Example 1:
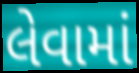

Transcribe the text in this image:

લેવામાં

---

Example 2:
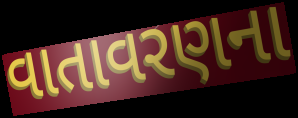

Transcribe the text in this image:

વાતાવરણના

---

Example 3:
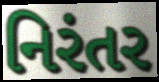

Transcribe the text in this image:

નિરંતર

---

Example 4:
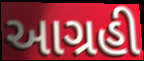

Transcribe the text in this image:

આગ્રહી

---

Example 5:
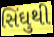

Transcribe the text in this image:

સિંઘુથી